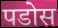
पडोस